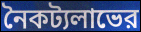
নৈকট্যলাভের